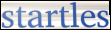
startles